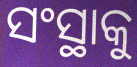
ସଂସ୍ଥାକୁ